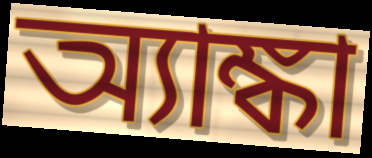
অ্যাঙ্কা